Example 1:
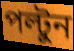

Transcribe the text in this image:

পল্টুন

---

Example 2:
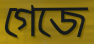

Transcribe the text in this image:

গেজে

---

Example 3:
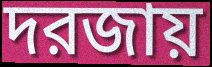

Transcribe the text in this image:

দরজায়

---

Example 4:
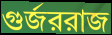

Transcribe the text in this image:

গুর্জররাজ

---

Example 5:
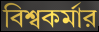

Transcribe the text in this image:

বিশ্বকর্মার